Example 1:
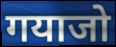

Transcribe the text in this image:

गयाजो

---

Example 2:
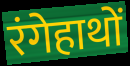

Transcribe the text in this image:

रंगेहाथों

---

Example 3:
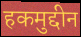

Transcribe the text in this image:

हकमुद्दीन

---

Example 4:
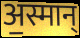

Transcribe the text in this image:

अ॒स्मान्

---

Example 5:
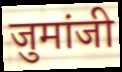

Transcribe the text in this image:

जुमांजी